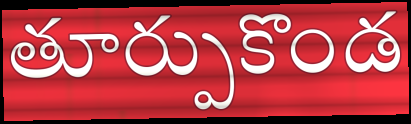
తూర్పుకొండ